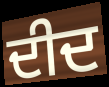
ਦੀਦ